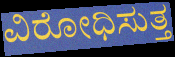
ವಿರೋಧಿಸುತ್ತ